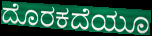
ದೊರಕದೆಯೂ